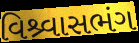
વિશ્ર્વાસભંગ